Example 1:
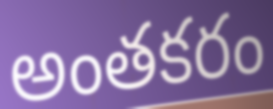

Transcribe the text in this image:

అంతకరం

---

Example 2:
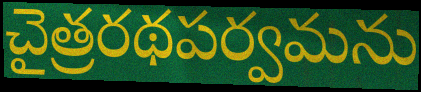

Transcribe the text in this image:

చైత్రరథపర్వమను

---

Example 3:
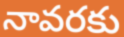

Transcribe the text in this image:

నావరకు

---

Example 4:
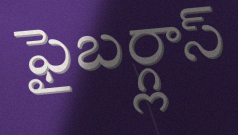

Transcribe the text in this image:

ఫైబర్గ్లాస్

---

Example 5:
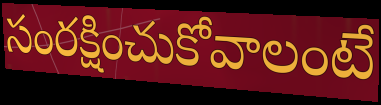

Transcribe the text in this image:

సంరక్షించుకోవాలంటే